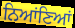
ਨਿਆਂਣਿਆਂ